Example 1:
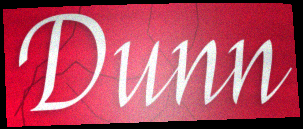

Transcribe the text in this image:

Dunn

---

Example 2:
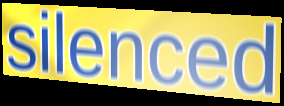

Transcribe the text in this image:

silenced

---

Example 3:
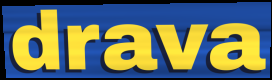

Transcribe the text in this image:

drava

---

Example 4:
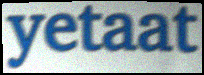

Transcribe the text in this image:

yetaat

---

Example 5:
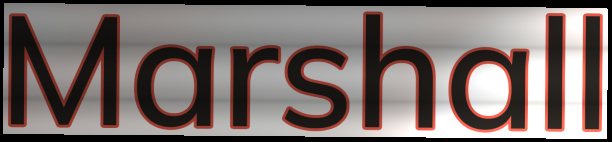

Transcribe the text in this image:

Marshall